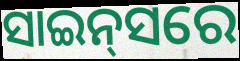
ସାଇନ୍‌ସରେ